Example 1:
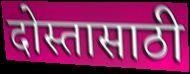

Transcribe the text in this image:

दोस्तासाठी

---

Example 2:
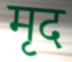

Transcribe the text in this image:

मृद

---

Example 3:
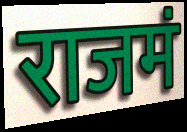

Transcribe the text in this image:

राजमं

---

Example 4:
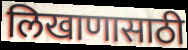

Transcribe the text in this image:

लिखाणासाठी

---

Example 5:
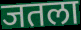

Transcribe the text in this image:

जतला